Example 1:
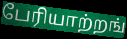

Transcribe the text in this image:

பேரியாற்றங்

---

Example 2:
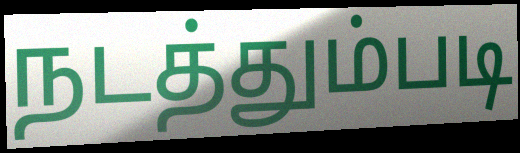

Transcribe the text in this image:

நடத்தும்படி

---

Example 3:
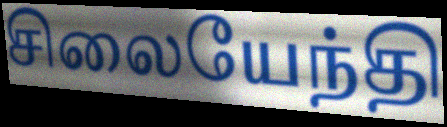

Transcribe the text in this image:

சிலையேந்தி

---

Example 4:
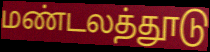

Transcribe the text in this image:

மண்டலத்தூடு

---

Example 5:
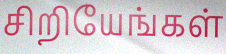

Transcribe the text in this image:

சிறியேங்கள்